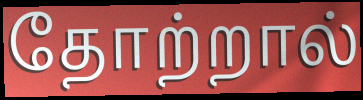
தோற்றால்